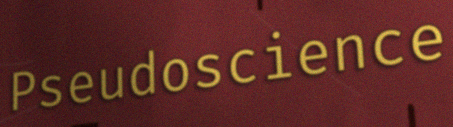
Pseudoscience